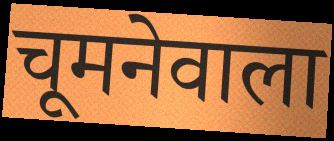
चूमनेवाला